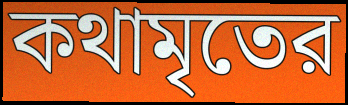
কথামৃতের